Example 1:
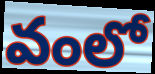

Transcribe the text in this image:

వంలో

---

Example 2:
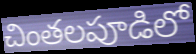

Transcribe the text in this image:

చింతలపూడిలో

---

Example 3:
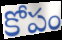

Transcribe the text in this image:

కోపం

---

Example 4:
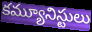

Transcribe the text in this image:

కమ్యూనిస్టులు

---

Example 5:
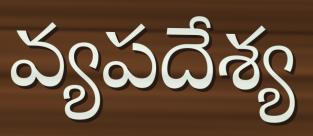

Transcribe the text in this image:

వ్యపదేశ్య